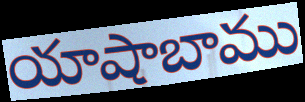
యాషాబాము